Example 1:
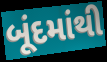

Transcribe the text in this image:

બૂંદમાંથી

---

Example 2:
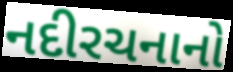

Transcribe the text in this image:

નદીરચનાનો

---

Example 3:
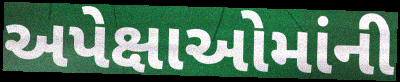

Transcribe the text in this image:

અપેક્ષાઓમાંની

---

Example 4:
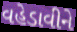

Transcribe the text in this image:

વહેડાવીને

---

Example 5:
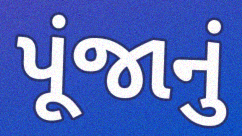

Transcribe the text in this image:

પૂંજાનું